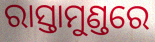
ରାସ୍ତାମୁଣ୍ଡରେ